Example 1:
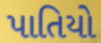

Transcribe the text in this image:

પાતિયો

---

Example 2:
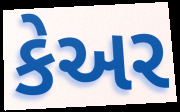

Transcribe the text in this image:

કેઅર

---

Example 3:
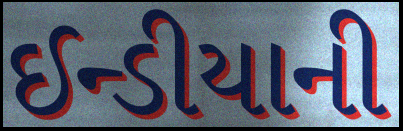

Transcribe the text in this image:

ઈન્ડીયાની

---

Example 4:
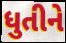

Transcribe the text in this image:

ધુતીને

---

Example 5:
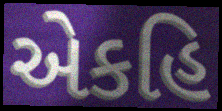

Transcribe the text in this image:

એકહિ